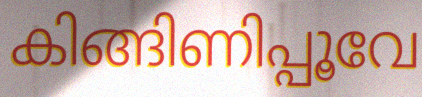
കിങ്ങിണിപ്പൂവേ